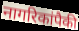
नागरिकांपैकी